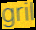
gril